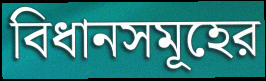
বিধানসমূহের